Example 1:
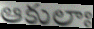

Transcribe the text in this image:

ఆకులాః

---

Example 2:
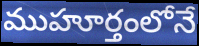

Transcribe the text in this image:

ముహూర్తంలోనే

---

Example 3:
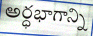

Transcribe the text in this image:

అర్ధభాగాన్ని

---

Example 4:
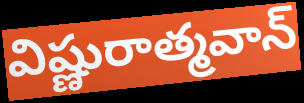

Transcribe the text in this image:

విష్ణురాత్మవాన్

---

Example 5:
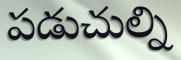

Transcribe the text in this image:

పడుచుల్ని